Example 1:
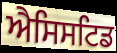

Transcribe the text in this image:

ਐਸਿਸਟਿਡ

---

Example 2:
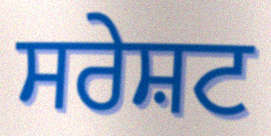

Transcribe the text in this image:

ਸਰੇਸ਼ਟ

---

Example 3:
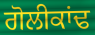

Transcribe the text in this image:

ਗੋਲੀਕਾਂਢ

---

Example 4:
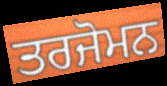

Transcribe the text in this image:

ਤਰਜੋਮਨ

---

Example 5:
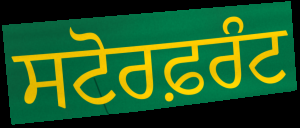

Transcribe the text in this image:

ਸਟੋਰਫ਼ਰੰਟ